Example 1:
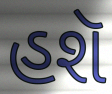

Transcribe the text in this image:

હશૅ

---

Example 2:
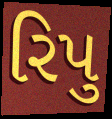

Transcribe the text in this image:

રિપુ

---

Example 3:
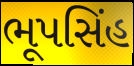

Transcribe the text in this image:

ભૂપસિંહ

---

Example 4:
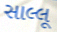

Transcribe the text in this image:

સાલ્લૂ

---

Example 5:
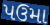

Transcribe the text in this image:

પઉમા